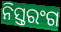
ନିସ୍ତରଂଗ